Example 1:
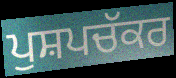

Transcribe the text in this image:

ਪੁਸ਼ਪਚੱਕਰ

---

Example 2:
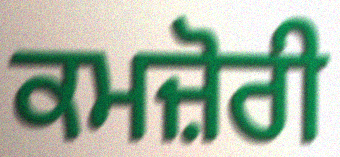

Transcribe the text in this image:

ਕਮਜ਼ੋਰੀ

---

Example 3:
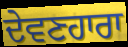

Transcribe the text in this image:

ਦੇਵਣਹਾਰਾ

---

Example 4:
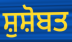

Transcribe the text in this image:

ਸ਼ੁਸ਼ੋਬਤ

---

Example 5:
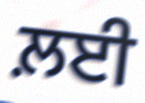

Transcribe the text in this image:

ਲ਼ਈ